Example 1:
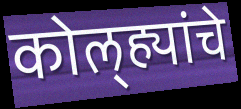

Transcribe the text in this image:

कोल्ह्यांचे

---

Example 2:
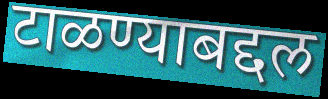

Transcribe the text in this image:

टाळण्याबद्दल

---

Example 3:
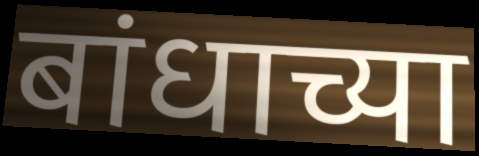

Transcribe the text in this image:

बांधाच्या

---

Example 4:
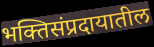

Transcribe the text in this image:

भक्तिसंप्रदायातील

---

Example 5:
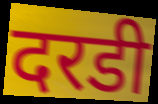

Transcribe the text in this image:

दरडी